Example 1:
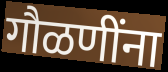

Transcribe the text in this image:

गौळणींना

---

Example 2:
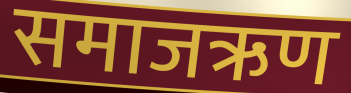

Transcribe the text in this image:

समाजऋण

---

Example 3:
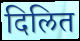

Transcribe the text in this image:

दिलित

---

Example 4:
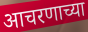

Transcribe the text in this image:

आचरणाच्या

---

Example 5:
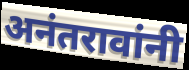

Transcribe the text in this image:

अनंतरावांनी